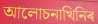
আলোচনাখিনিৰ